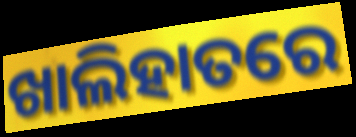
ଖାଲିହାତରେ